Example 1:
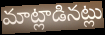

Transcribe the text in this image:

మాట్లాడినట్లు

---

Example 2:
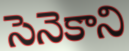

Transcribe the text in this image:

సెనెకాని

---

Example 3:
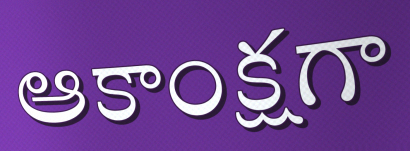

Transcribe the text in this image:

ఆకాంక్షగా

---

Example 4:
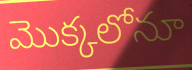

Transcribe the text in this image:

మొక్కలోనూ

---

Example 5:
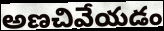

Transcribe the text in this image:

అణచివేయడం